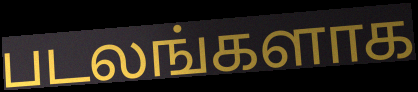
படலங்களாக